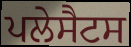
ਪਲੇਸੈਟਸ